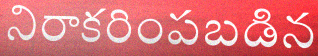
నిరాకరింపబడిన